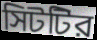
সিটটির